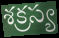
శక్రస్య